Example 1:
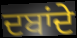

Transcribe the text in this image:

ਦਬਾਂਦੇ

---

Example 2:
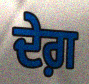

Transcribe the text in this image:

ਦੇਗ਼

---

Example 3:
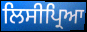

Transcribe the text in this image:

ਲਿਸੀਪ੍ਰਿਆ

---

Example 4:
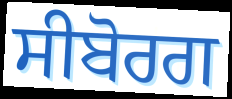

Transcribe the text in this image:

ਸੀਬੋਰਗ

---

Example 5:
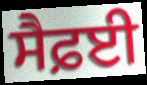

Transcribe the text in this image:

ਸੈਫ਼ਈ